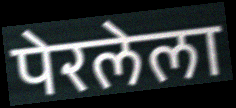
पेरलेला